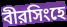
বীরসিংহে